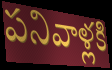
పనివాళ్లకి